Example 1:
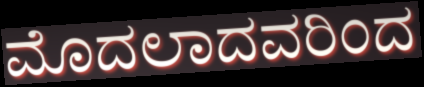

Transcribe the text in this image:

ಮೊದಲಾದವರಿಂದ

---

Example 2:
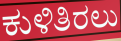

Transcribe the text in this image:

ಕುಳಿತಿರಲು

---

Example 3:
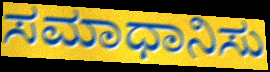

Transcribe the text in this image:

ಸಮಾಧಾನಿಸು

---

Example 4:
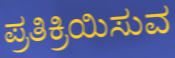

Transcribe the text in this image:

ಪ್ರತಿಕ್ರಿಯಿಸುವ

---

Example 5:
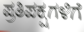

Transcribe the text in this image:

ಪ್ರತಿಪಕ್ಷಗಳಿಗೆ